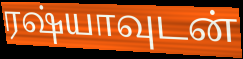
ரஷ்யாவுடன்